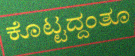
ಕೊಟ್ಟದ್ದಂತೂ